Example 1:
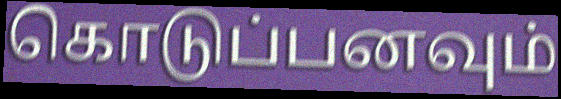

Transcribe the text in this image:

கொடுப்பனவும்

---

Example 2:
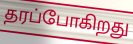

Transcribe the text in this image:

தரப்போகிறது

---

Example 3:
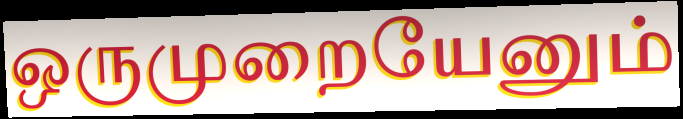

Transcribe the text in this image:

ஒருமுறையேனும்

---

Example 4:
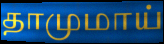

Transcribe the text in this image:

தாமுமாய்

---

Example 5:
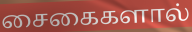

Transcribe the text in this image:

சைகைகளால்